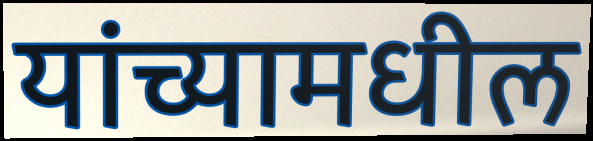
यांच्यामधील